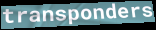
transponders